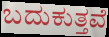
ಬದುಕುತ್ತವೆ